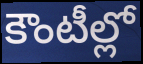
కౌంటీల్లో